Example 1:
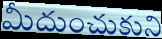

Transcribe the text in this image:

మీదుంచుకుని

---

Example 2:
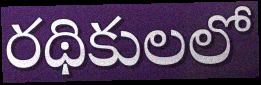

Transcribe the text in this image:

రథికులలో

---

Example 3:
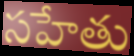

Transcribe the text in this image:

సహేతు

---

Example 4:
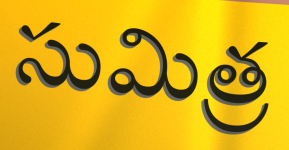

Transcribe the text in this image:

సుమిత్ర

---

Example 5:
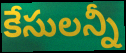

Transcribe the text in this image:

కేసులన్నీ